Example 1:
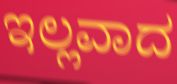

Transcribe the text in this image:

ಇಲ್ಲವಾದ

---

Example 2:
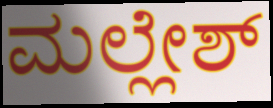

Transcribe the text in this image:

ಮಲ್ಲೇಶ್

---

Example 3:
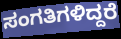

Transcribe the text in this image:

ಸಂಗತಿಗಳಿದ್ದರೆ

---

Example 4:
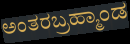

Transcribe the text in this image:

ಅಂತರಬ್ರಹ್ಮಾಂಡ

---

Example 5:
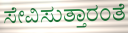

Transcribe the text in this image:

ಸೇವಿಸುತ್ತಾರಂತೆ